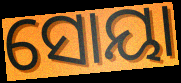
ସୋୟା